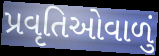
પ્રવૃતિઓવાળું